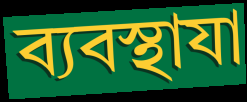
ব্যবস্থাযা